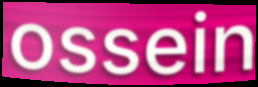
ossein